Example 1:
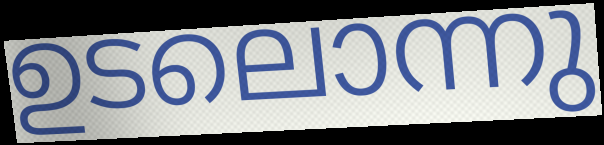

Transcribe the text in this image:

ഉടലൊന്നു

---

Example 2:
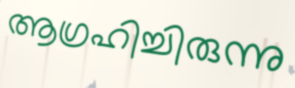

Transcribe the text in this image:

ആഗ്രഹിച്ചിരുന്നു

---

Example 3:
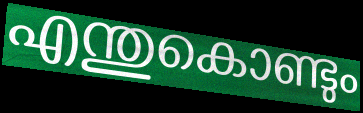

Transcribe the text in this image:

എന്തുകൊണ്ടും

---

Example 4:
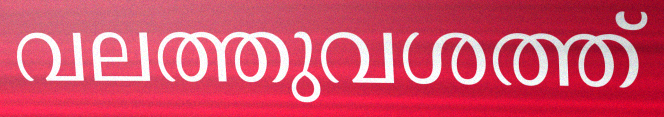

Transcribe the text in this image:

വലത്തുവശത്ത്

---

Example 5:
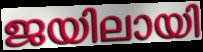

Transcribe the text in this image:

ജയിലായി